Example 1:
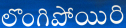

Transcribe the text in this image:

లొంగిపోయిరి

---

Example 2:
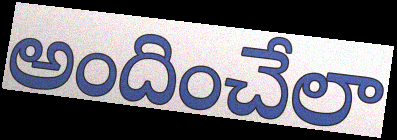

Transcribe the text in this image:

అందించేలా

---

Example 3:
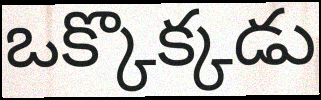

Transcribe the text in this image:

ఒక్కొక్కడు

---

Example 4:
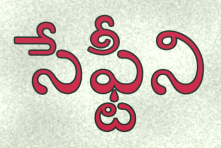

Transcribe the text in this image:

సేఫ్టీని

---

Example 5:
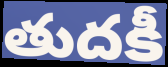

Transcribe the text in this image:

తుదకీ